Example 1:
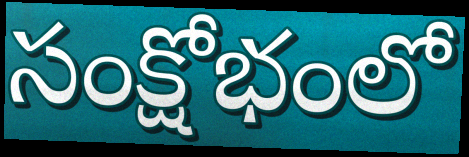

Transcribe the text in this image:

సంక్షోభంలో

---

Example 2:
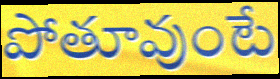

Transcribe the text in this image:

పోతూవుంటే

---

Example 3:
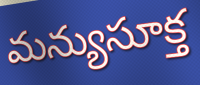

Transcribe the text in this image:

మన్యుసూక్త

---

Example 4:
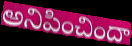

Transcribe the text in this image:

అనిపించిందా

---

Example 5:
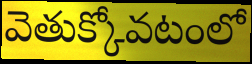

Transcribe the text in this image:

వెతుక్కోవటంలో